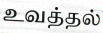
உவத்தல்